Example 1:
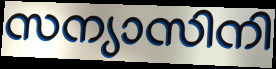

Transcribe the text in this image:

സന്യാസിനി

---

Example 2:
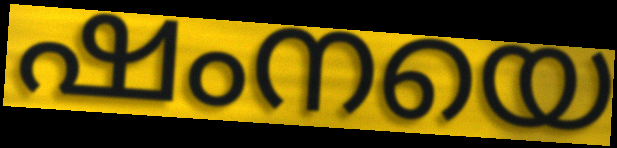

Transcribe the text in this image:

ഷംനയെ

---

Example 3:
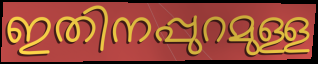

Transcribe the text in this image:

ഇതിനപ്പുറമുള്ള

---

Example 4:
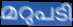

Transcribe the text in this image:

മറുപടി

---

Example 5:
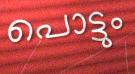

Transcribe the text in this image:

പൊട്ടും